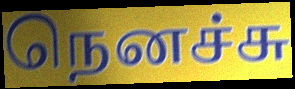
நெனச்சு